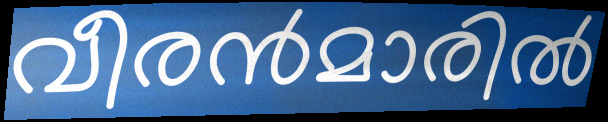
വീരൻമാരിൽ